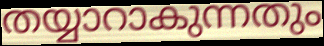
തയ്യാറാകുന്നതും